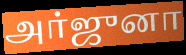
அர்ஜுனா